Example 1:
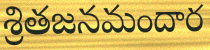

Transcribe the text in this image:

శ్రితజనమందార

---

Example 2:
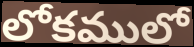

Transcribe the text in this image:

లోకములో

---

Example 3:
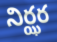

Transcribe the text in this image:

నిర్ఝర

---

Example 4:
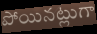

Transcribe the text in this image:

పోయినట్లుగా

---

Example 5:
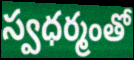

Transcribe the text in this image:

స్వధర్మంతో